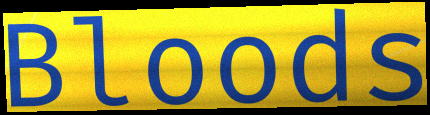
Bloods